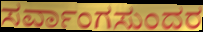
ಸರ್ವಾಂಗಸುಂದರ